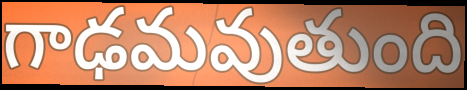
గాఢమవుతుంది